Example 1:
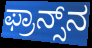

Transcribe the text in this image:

ಫ್ರಾನ್ಸ್‌ನ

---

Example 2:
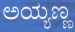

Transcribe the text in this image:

ಅಯ್ಯಣ್ಣ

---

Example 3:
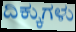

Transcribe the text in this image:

ದಿಕ್ಕುಗಳು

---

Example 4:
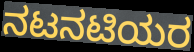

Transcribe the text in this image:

ನಟನಟಿಯರ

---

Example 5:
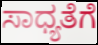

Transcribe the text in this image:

ಸಾಧ್ಯತೆಗೆ